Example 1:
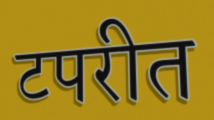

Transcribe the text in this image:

टपरीत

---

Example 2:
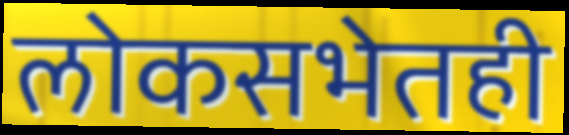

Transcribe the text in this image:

लोकसभेतही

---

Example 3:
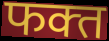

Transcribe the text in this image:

फक्‍त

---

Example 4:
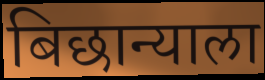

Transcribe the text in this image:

बिछान्याला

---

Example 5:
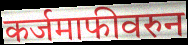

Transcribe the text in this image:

कर्जमाफीवरुन